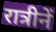
रात्रीनें